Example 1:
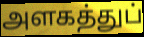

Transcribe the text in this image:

அளகத்துப்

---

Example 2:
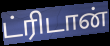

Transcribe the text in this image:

ட்ரிடான்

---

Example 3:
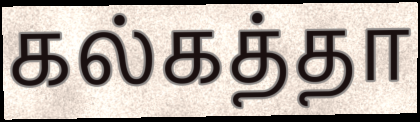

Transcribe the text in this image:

கல்கத்தா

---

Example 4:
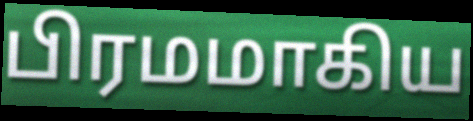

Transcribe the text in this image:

பிரமமாகிய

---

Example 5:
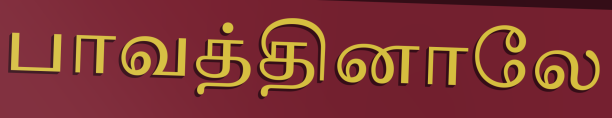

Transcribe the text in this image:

பாவத்தினாலே